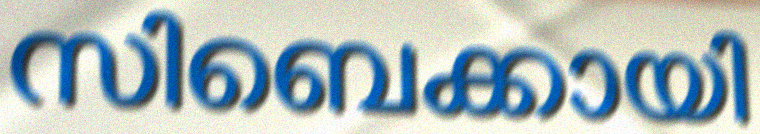
സിബെക്കായി